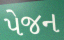
પેજન